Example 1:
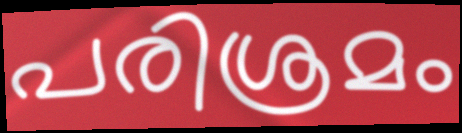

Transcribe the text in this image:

പരിശ്രമം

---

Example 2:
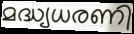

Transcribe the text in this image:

മദ്ധ്യധരണി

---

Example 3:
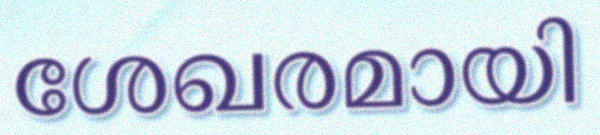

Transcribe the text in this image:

ശേഖരമായി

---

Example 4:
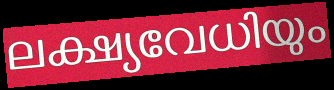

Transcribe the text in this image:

ലക്ഷ്യവേധിയും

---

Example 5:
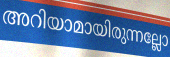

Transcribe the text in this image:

അറിയാമായിരുന്നല്ലോ